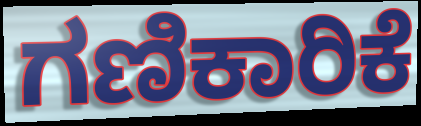
ಗಣಿಕಾರಿಕೆ